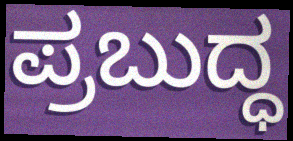
ಪ್ರಬುದ್ಧ